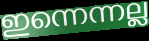
ഇന്നെന്നല്ല